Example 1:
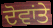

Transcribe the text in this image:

ਦੋਵਾਂਤੇ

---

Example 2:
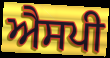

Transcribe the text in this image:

ਐਸਪੀ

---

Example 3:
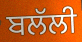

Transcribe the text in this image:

ਬਲੱਲੀ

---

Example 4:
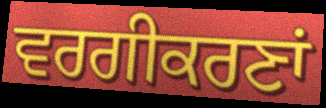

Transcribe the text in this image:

ਵਰਗੀਕਰਣਾਂ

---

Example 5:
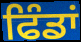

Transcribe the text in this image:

ਫਿੰਡਾਂ